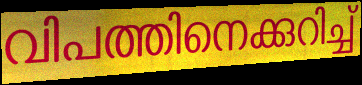
വിപത്തിനെക്കുറിച്ച്